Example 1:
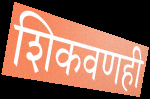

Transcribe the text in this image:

शिकवणही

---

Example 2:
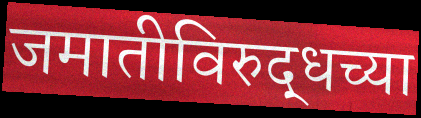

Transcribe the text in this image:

जमातीविरुद्धच्या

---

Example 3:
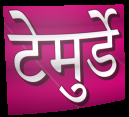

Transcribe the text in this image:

टेमुर्डे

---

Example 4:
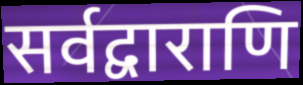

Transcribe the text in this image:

सर्वद्वाराणि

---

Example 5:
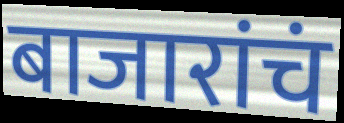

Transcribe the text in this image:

बाजारांचं